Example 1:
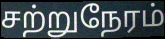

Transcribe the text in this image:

சற்றுநேரம்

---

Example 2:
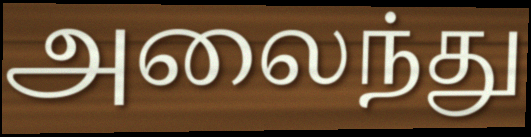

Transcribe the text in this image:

அலைந்து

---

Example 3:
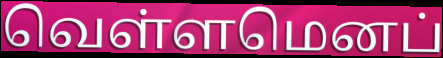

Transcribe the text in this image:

வெள்ளமெனப்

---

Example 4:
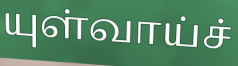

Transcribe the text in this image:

யுள்வாய்ச்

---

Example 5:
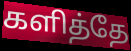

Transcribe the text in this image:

களித்தே